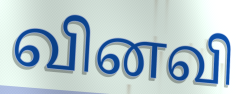
வினவி